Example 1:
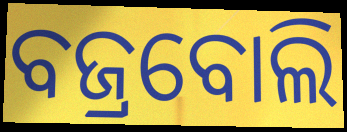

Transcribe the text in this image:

ବଜ୍ରବୋଲି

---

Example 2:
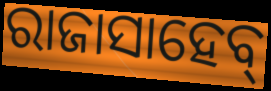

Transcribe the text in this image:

ରାଜାସାହେବ୍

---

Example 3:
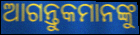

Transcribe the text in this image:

ଆଗନ୍ତୁକମାନଙ୍କୁ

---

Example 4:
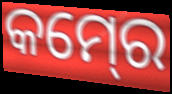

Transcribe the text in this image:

କମ୍‍ରେ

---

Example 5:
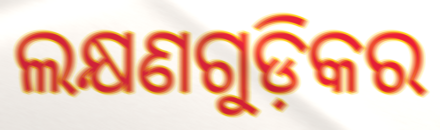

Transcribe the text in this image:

ଲକ୍ଷଣଗୁଡ଼ିକର